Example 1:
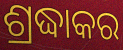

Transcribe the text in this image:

ଶ୍ରଦ୍ଧାକର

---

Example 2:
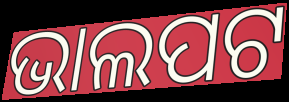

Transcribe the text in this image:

ଭାଲପଟ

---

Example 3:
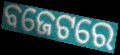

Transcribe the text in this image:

ବଜେଟରେ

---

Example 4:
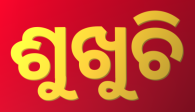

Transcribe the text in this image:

ଶୁଖୁଚି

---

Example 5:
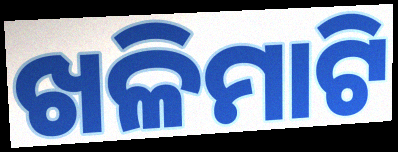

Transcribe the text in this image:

ଖଳିମାଟି